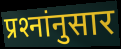
प्रश्नांनुसार